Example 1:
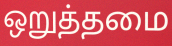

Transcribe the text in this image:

ஒறுத்தமை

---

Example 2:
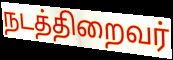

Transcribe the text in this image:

நடத்திறைவர்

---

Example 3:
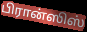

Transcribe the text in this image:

பிரான்ஸிஸ்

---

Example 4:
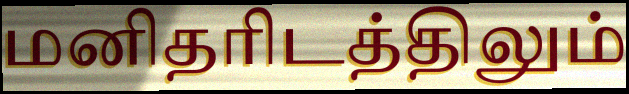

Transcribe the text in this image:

மனிதரிடத்திலும்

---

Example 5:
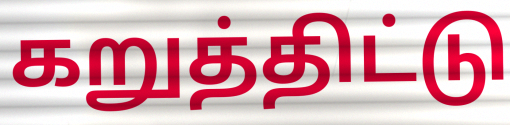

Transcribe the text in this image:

கறுத்திட்டு